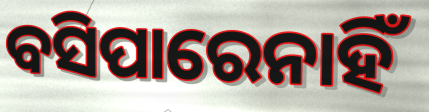
ବସିପାରେନାହିଁ